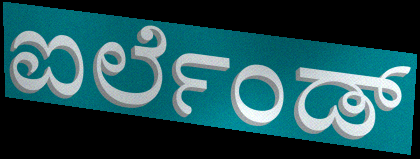
ಐರ್ಲೆಂಡ್